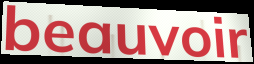
beauvoir